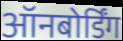
ऑनबोर्डिंग